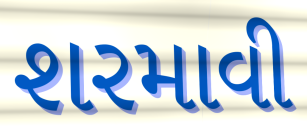
શરમાવી